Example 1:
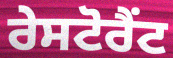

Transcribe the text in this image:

ਰੇਸਟੋਰੈਂਟ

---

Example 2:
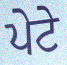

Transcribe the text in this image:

ਪੇਟੇ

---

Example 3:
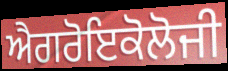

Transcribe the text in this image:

ਐਗਰੋਇਕੋਲੋਜੀ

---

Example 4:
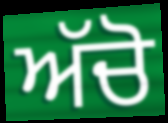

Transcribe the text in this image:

ਅੱਚੋ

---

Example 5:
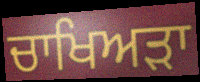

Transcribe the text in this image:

ਚਾਖਿਅੜਾ